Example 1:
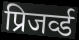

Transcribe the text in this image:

प्रिजर्व्ड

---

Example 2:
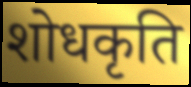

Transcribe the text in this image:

शोधकृति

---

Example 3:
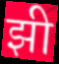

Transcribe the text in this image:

झी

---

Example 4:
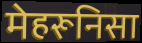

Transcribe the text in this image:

मेहरूनिसा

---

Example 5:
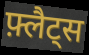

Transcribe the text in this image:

फ़्लैट्स